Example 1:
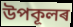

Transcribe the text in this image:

উপকূলৰ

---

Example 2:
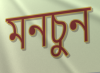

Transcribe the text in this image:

মনচুন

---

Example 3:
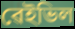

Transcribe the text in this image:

ৱেইভিল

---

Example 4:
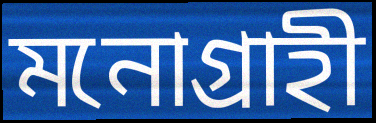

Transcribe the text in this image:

মনোগ্ৰাহী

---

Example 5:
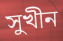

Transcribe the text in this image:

সুখীন